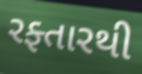
રફ્તારથી